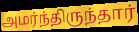
அமர்ந்திருந்தார்